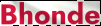
Bhonde